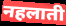
नहलाती